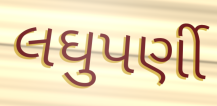
લઘુપર્ણી